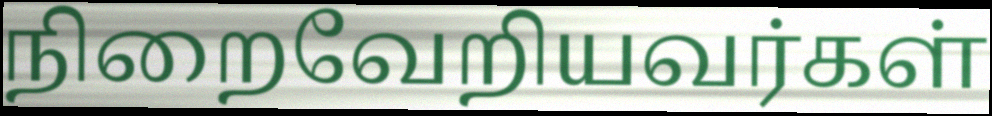
நிறைவேறியவர்கள்